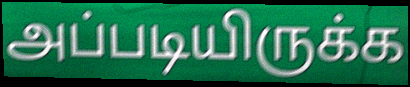
அப்படியிருக்க